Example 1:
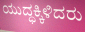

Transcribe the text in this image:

ಯುದ್ಧಕ್ಕಿಳಿದರು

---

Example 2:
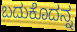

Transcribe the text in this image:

ಬದುಕೊದನ್ನ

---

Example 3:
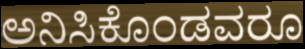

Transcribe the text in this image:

ಅನಿಸಿಕೊಂಡವರೂ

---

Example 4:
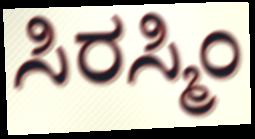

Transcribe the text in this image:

ಸಿರಸ್ಮಿಂ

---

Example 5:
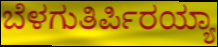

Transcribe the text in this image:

ಬೆಳಗುತಿರ್ಪಿರಯ್ಯಾ